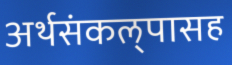
अर्थसंकल्पासह